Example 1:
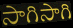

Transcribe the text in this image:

సాగిసాగి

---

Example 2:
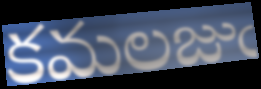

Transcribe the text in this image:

కమలజుఁ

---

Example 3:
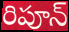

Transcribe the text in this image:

రిపూన్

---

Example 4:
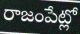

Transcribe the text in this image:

రాజంపేట్లో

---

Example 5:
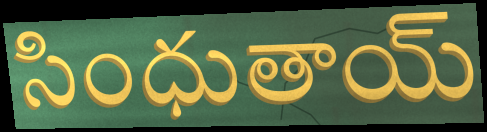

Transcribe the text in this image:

సింధుతాయ్